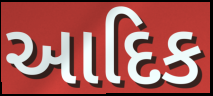
આદિક